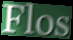
Flos